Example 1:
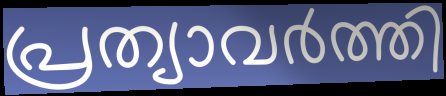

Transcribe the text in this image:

പ്രത്യാവർത്തി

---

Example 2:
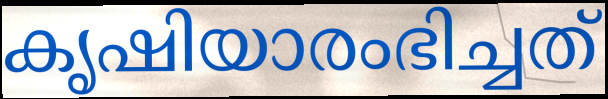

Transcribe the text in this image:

കൃഷിയാരംഭിച്ചത്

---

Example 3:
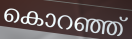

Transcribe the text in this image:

കൊറഞ്ഞ്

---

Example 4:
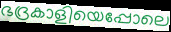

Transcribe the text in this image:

ഭദ്രകാളിയെപ്പോലെ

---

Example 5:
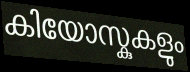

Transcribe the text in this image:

കിയോസ്കുകളും